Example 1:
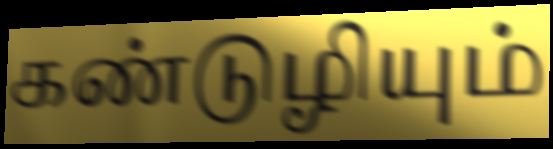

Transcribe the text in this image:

கண்டுழியும்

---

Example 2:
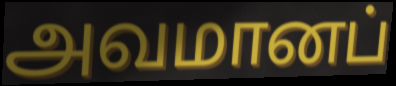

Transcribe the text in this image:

அவமானப்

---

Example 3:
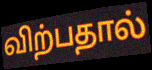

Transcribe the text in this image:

விற்பதால்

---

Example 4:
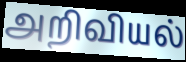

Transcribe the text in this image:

அறிவியல்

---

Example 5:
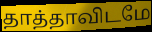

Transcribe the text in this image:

தாத்தாவிடமே